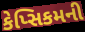
કેપ્સિકમની